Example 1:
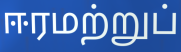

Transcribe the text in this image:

ஈரமற்றுப்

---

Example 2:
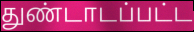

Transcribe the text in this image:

துண்டாடப்பட்ட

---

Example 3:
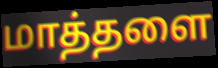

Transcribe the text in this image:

மாத்தளை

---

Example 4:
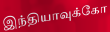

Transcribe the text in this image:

இந்தியாவுக்கோ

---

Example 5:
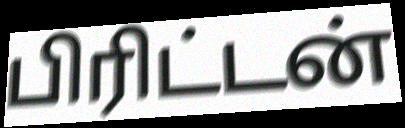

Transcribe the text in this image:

பிரிட்டன்